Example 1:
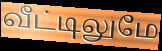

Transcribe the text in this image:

வீட்டிலுமே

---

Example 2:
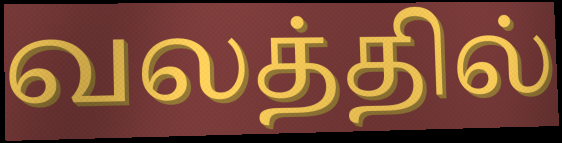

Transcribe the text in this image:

வலத்தில்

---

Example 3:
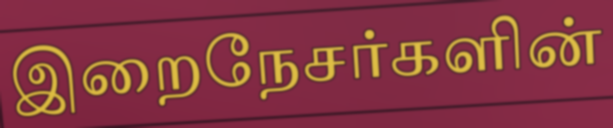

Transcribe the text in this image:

இறைநேசர்களின்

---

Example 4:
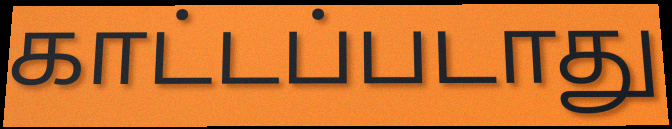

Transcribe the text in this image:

காட்டப்படாது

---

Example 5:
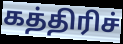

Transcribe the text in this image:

கத்திரிச்